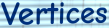
Vertices